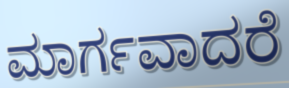
ಮಾರ್ಗವಾದರೆ